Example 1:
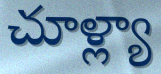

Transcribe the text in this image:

చూళ్ల్యా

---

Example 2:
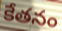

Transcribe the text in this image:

కేతనం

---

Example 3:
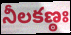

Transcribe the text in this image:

నీలకణ్ఠః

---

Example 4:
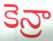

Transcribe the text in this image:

కెన్రా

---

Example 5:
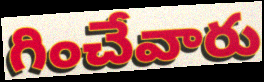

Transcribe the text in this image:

గించేవారు